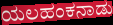
ಯಲಹಂಕನಾಡು